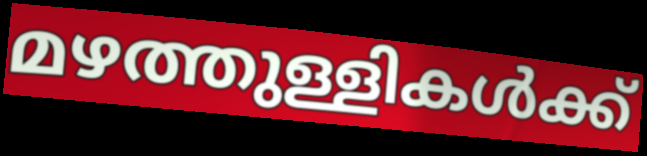
മഴത്തുള്ളികൾക്ക്